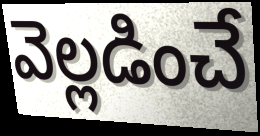
వెల్లడించే